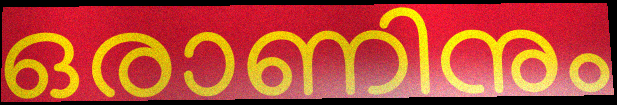
ഒരാണിനും